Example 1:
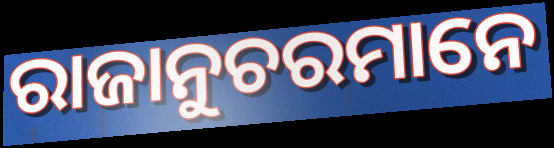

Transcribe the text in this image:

ରାଜାନୁଚରମାନେ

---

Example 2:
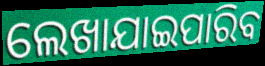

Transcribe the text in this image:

ଲେଖାଯାଇପାରିବ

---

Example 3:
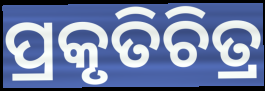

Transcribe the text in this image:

ପ୍ରକୃତିଚିତ୍ର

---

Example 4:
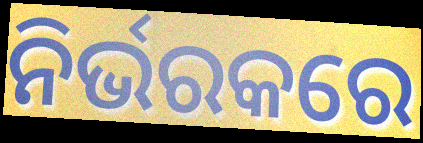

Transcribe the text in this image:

ନିର୍ଭରକରେ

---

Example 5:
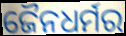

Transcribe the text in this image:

ଜୈନଧର୍ମର